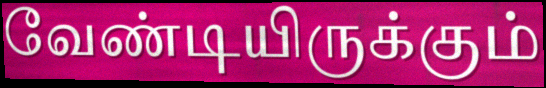
வேண்டியிருக்கும்